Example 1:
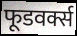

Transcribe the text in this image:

फूडवर्क्स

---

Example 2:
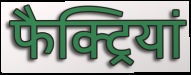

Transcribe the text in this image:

फैक्ट्रियां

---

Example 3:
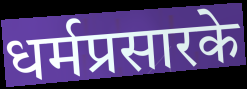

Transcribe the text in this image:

धर्मप्रसारके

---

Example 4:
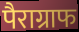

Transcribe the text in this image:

पैराग्राफ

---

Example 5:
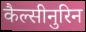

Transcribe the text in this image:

कैल्सीनुरिन